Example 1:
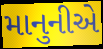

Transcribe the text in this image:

માનુનીએ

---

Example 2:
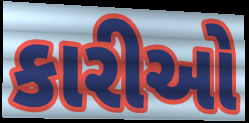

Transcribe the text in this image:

કારીઓ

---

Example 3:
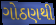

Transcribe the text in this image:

ગોઠણથી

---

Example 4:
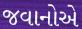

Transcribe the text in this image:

જવાનોએ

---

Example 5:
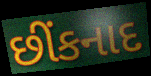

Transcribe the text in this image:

છીંકનાદ